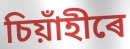
চিয়াঁহীৰে